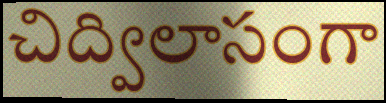
చిద్విలాసంగా